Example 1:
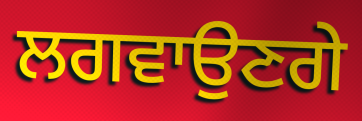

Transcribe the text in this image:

ਲਗਵਾਉਣਗੇ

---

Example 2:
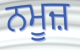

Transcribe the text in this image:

ਨਮੂਜ਼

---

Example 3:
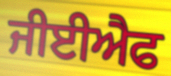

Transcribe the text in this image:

ਜੀਈਐਫ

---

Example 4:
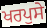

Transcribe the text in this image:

ਖਰਪੁਸੇ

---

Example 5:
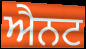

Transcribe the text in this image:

ਐਨਟ